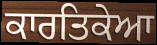
ਕਾਰਤਿਕੇਆ